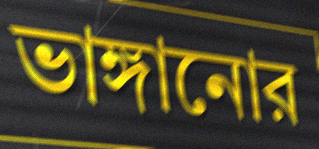
ভাঙ্গানোর